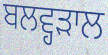
ਬਲਵ੍ਹੜਾਲ